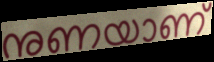
നുണയാണ്